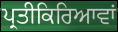
ਪ੍ਰਤੀਕਿਰਿਆਵਾਂ